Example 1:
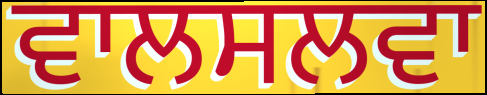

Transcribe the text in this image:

ਵਾਲਸਲਵਾ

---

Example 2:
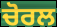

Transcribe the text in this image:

ਚੋਰਲ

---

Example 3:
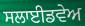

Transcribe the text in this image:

ਸਲਾਈਡਵੇਅ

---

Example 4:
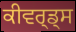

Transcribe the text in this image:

ਕੀਵਰ੍ਡ੍ਸ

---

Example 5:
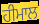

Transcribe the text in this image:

ਹੀਮਾਲ